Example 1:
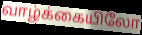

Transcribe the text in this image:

வாழ்க்கையிலோ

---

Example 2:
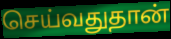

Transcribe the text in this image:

செய்வதுதான்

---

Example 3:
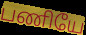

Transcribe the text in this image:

பணியே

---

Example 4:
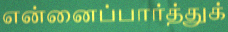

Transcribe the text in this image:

என்னைப்பார்த்துக்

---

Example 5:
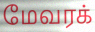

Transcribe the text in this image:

மேவரக்